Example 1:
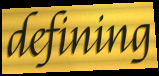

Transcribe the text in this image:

defining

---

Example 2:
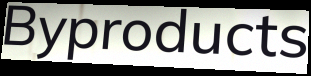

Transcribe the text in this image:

Byproducts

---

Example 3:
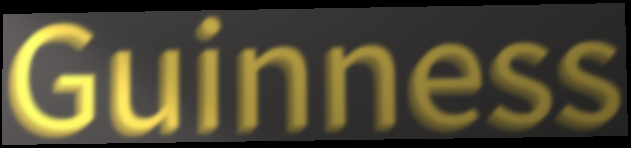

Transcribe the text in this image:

Guinness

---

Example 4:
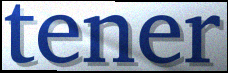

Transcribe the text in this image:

tener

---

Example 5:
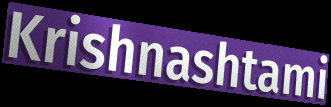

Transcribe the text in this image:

Krishnashtami